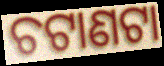
ଚଟାଣଟା